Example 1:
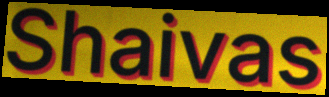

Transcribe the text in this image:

Shaivas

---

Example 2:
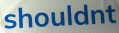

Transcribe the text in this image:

shouldnt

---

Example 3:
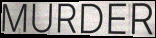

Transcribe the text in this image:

MURDER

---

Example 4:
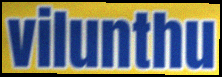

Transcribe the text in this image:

vilunthu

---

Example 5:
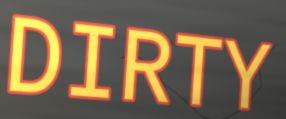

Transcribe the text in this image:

DIRTY